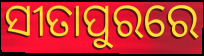
ସୀତାପୁରରେ